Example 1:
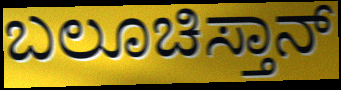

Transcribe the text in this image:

ಬಲೂಚಿಸ್ತಾನ್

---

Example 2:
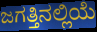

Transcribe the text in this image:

ಜಗತ್ತಿನಲ್ಲಿಯೆ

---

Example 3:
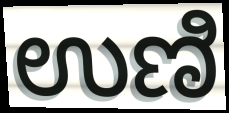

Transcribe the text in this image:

ಉಣಿ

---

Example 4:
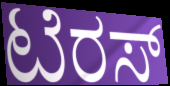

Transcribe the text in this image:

ಟೆರಸ್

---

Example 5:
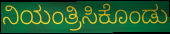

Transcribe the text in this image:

ನಿಯಂತ್ರಿಸಿಕೊಂಡು